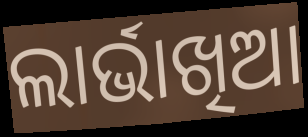
ଲାର୍ଭାଖିଆ